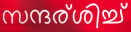
സന്ദര്ശിച്ച്